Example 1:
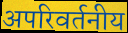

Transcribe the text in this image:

अपरिवर्तनीय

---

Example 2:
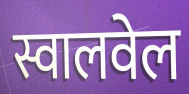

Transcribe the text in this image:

स्वालवेल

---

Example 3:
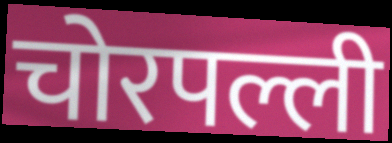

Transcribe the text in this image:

चोरपल्ली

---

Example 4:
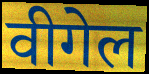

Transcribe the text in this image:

वीगेल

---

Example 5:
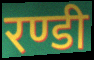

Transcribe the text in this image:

रण्डी